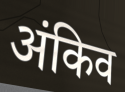
अंकिव